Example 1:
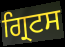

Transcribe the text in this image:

ਗ੍ਰਿਟਸ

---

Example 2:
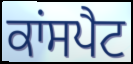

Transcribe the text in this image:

ਕਾਂਸਪੈਟ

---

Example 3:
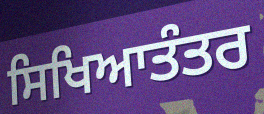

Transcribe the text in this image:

ਸਿਖਿਆਤੰਤਰ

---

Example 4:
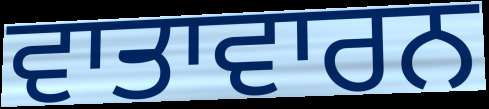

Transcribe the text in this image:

ਵਾਤਾਵਾਰਨ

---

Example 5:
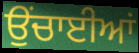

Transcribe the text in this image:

ਉਂਚਾਈਆਂ